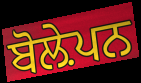
ਬੋਲ਼ੇਪਨ